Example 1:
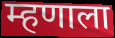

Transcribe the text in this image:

म्‍हणाला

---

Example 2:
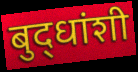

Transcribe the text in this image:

बुद्धांशी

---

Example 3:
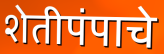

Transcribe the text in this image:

शेतीपंपाचे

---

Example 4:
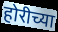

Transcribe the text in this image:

होरीच्या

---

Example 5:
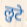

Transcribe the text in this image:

लुटे